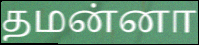
தமன்னா